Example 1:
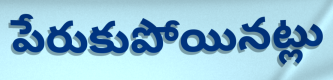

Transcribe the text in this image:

పేరుకుపోయినట్లు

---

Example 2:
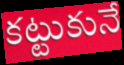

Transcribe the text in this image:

కట్టుకునే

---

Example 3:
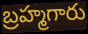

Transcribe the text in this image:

బ్రహ్మగారు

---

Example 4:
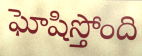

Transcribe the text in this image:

ఘోషిస్తోంది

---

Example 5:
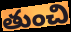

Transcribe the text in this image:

తుంచి